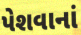
પેશવાનાં